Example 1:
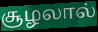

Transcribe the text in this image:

சூழலால்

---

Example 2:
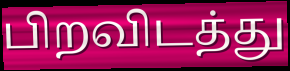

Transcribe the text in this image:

பிறவிடத்து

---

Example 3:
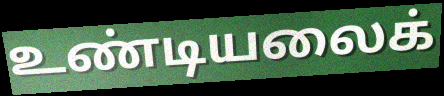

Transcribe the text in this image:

உண்டியலைக்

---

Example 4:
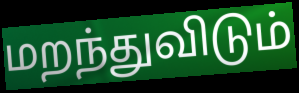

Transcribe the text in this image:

மறந்துவிடும்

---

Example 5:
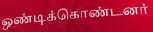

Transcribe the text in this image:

ஒண்டிக்கொண்டனர்